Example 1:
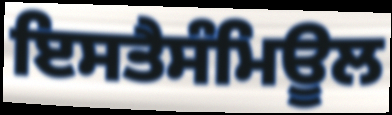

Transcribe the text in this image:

ਇਸਤੈਸੰਮਿਊਲ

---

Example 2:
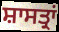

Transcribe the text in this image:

ਸ਼ਾਸਤ੍ਰਾਂ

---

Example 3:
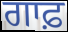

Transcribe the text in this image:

ਗਾਫ਼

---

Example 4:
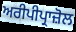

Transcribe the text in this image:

ਅਰੀਪੀਪ੍ਰਾਜ਼ੋਲ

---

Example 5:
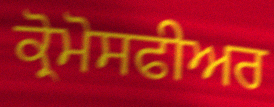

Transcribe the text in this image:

ਕ੍ਰੋਮੋਸਫੀਅਰ